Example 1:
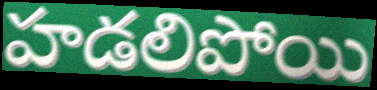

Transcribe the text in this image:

హడలిపోయి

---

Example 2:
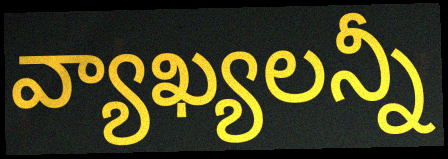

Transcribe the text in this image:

వ్యాఖ్యలన్నీ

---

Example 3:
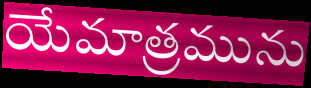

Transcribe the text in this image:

యేమాత్రమును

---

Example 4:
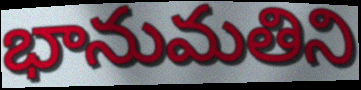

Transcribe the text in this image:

భానుమతిని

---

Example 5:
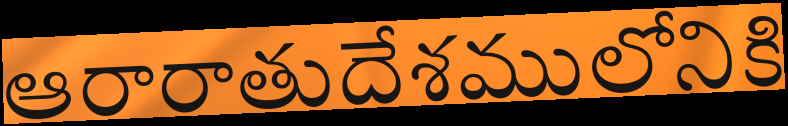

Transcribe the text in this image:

ఆరారాతుదేశములోనికి